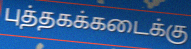
புத்தகக்கடைக்கு